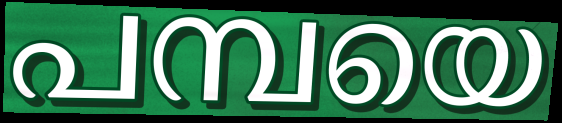
പമ്പയെ